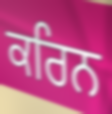
ਕਰਿਨ